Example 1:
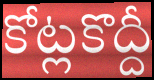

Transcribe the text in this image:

కోట్లకొద్దీ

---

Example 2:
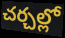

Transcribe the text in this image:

చర్చల్లో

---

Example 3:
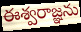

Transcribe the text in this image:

ఈశ్వరాజ్ఞను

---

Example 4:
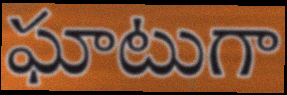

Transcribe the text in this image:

ఘాటుగా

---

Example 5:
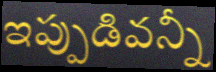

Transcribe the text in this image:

ఇప్పుడివన్నీ